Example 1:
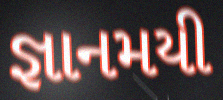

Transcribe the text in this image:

જ્ઞાનમયી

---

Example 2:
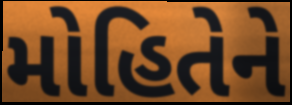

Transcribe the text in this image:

મોહિતેને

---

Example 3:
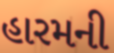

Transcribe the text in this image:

હારમની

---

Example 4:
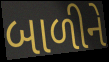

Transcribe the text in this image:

બાળીને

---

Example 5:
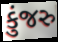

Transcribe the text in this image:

કુંજરુ